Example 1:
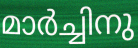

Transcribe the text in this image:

മാർച്ചിനു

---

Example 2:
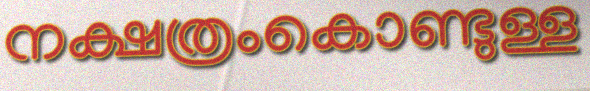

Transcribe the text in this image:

നക്ഷത്രംകൊണ്ടുള്ള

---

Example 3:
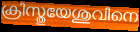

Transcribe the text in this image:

ക്രിസ്തുയേശുവിനെ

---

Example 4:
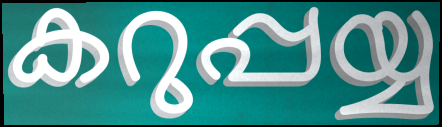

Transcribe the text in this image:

കറുപ്പയ്യ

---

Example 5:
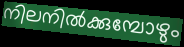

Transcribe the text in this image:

നിലനിൽക്കുമ്പോഴും